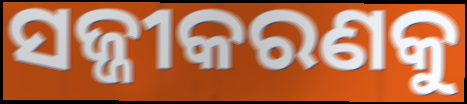
ସଜ୍ଜୀକରଣକୁ